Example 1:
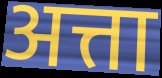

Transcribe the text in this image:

अत्ता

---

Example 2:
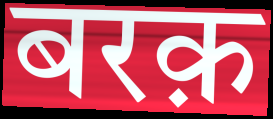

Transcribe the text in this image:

बरक़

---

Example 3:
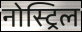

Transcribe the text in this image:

नोस्ट्रिल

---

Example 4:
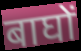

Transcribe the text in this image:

बाघों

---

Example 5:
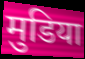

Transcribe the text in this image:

मुडिया